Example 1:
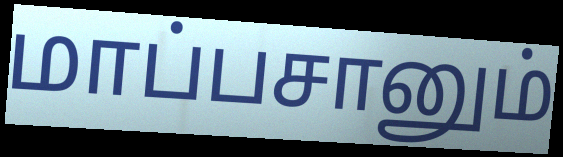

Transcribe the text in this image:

மாப்பசானும்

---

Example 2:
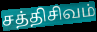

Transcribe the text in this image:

சத்திசிவம்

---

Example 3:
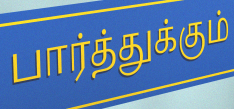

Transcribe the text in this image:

பார்த்துக்கும்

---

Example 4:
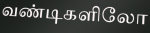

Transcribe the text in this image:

வண்டிகளிலோ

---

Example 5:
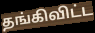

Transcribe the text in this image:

தங்கிவிட்ட